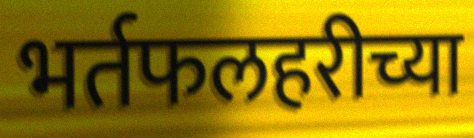
भर्तफलहरीच्या